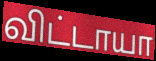
விட்டாயா